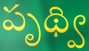
పృథ్వి